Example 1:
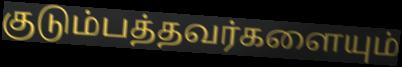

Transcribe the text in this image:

குடும்பத்தவர்களையும்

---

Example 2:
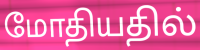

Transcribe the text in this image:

மோதியதில்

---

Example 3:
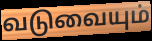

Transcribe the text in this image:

வடுவையும்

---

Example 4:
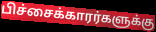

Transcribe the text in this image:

பிச்சைக்காரர்களுக்கு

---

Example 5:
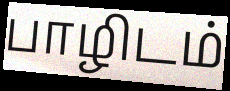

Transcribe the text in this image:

பாழிடம்